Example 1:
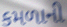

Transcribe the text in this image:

કમળાની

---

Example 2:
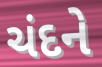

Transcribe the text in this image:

ચંદને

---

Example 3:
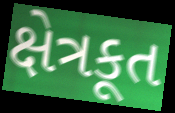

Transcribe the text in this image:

ક્ષેત્રકૂત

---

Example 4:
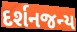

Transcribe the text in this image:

દર્શનજન્ય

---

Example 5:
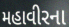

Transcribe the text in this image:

મહાવીરના